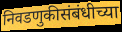
निवडणुकीसंबंधीच्या